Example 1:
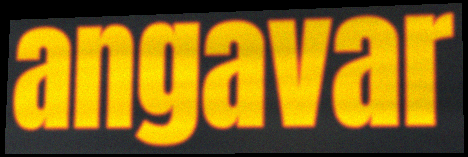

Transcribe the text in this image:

angavar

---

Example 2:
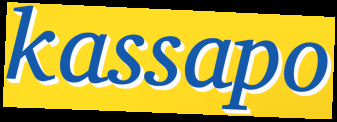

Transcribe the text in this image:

kassapo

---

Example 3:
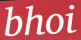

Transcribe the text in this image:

bhoi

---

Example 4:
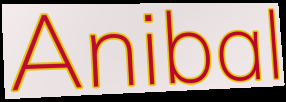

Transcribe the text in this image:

Anibal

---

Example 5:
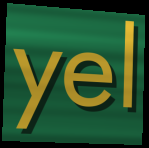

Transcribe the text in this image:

yel